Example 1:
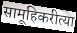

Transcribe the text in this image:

सामूहिकरीत्या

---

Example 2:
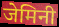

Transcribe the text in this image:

जेमिनी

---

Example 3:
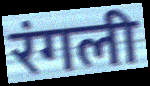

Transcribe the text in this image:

रंगली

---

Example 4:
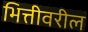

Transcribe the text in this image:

भित्तीवरील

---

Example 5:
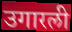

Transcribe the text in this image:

उगारली